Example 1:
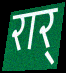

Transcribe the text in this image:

रार्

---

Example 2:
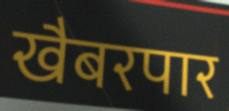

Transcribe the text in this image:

खैबरपार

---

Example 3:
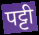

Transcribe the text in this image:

पट्टी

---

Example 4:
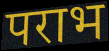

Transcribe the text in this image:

पराभ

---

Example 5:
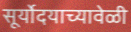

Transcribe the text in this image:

सूर्योदयाच्यावेळी